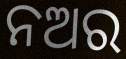
ନଅର